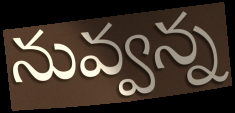
నువ్వన్న